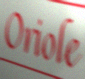
Oriole